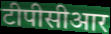
टीपीसीआर